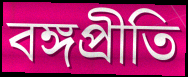
বঙ্গপ্রীতি